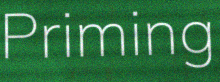
Priming